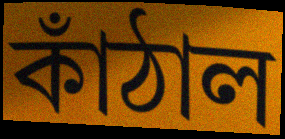
কাঁঠাল